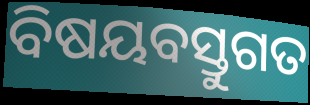
ବିଷୟବସ୍ତୁଗତ